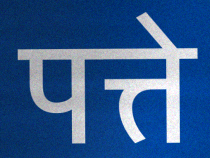
पत्ते